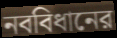
নববিধানের